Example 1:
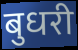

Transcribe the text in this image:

बुधरी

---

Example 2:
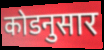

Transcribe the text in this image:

कोडनुसार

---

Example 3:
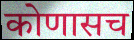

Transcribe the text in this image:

कोणासच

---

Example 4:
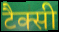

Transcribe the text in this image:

टैक्सी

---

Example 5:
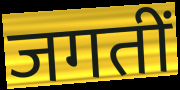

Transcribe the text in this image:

जगतीं